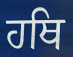
ਹਥਿ